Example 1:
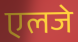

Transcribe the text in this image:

एलजे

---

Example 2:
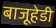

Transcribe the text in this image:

बाजूहेडी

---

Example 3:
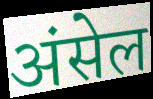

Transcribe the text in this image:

अंसेल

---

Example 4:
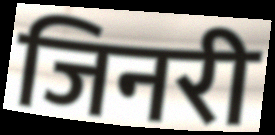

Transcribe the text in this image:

जिनरी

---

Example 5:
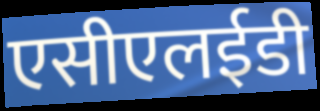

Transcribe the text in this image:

एसीएलईडी